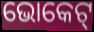
ଭୋକେଟ୍